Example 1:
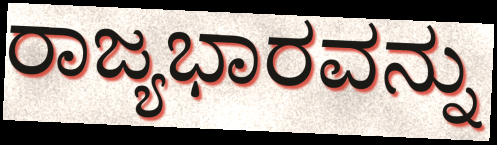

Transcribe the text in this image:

ರಾಜ್ಯಭಾರವನ್ನು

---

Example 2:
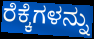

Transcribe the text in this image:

ರೆಕ್ಕೆಗಳನ್ನು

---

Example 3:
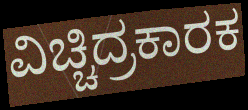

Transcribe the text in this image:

ವಿಚ್ಚಿದ್ರಕಾರಕ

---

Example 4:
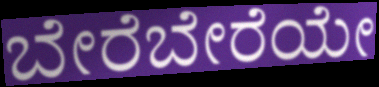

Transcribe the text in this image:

ಬೇರೆಬೇರೆಯೇ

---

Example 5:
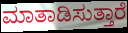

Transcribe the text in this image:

ಮಾತಾಡಿಸುತ್ತಾರೆ